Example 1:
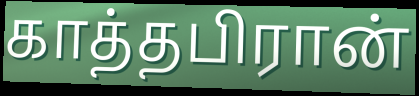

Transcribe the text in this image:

காத்தபிரான்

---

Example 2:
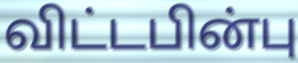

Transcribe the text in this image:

விட்டபின்பு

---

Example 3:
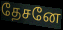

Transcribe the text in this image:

தேசனே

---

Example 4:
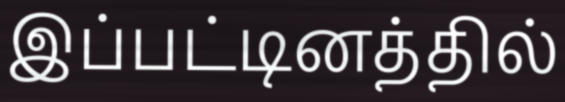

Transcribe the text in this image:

இப்பட்டினத்தில்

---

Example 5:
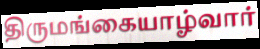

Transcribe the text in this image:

திருமங்கையாழ்வார்